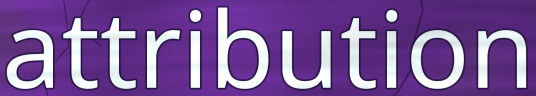
attribution